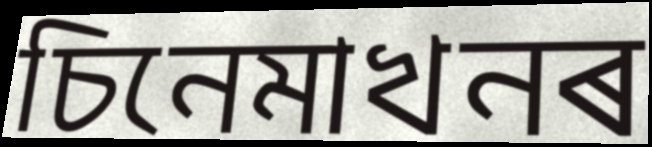
চিনেমাখনৰ